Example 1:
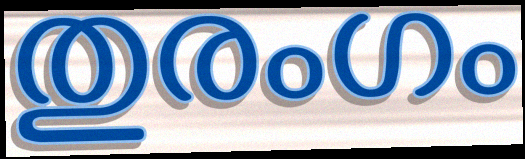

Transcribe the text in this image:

തുരംഗം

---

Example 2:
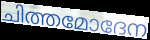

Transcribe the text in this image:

ചിത്തമോദേന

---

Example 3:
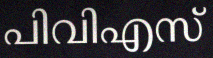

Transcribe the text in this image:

പിവിഎസ്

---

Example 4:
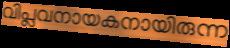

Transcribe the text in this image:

വിപ്ലവനായകനായിരുന്ന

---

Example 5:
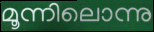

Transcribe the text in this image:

മൂന്നിലൊന്നു